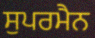
ਸੁਪਰਮੈਨ